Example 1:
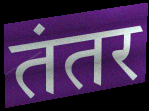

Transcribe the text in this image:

तंतर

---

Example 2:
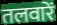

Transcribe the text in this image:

तलवारें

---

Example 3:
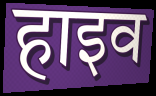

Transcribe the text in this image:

हाइव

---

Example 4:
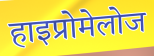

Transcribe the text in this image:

हाइप्रोमेलोज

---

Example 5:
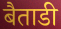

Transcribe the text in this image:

बैताडी